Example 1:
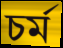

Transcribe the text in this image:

চর্ম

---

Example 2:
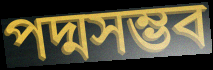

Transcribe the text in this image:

পদ্মসম্ভব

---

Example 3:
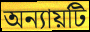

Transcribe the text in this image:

অন্যায়টি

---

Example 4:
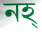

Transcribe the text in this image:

নহ্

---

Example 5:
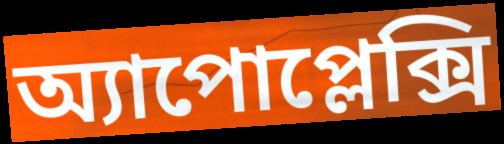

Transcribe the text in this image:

অ্যাপোপ্লেক্সি